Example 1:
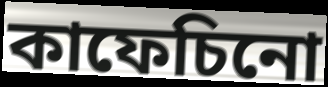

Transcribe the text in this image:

কাফেচিনো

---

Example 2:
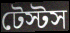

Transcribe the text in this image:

টেস্টস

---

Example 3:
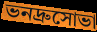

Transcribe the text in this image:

ভনদ্রুসোভা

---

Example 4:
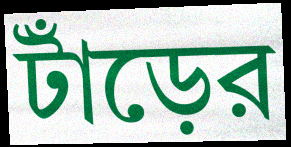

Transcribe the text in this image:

টাঁড়ের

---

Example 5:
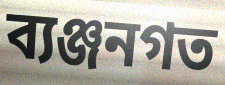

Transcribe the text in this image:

ব্যঞ্জনগত